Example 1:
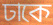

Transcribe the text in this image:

ঢাকে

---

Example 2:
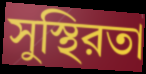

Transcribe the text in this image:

সুস্থিরতা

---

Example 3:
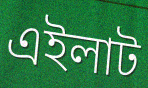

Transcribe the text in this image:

এইলাট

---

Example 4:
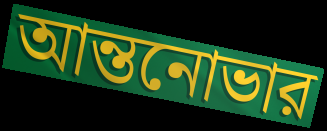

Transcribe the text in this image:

আন্তনোভার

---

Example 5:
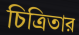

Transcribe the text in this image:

চিত্রিতার